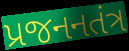
પ્રજનનતંત્ર